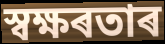
স্বক্ষৰতাৰ